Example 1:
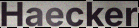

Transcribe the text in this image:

Haecker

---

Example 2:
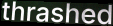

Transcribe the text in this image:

thrashed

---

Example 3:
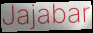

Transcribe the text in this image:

Jajabar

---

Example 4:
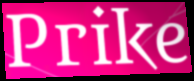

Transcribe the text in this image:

Prike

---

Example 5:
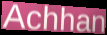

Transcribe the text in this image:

Achhan